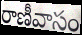
రాణీవాసం